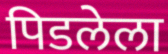
पिडलेला